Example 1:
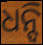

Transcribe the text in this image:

ଧନ୍ଦି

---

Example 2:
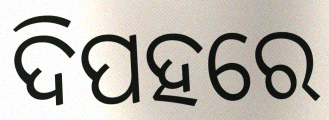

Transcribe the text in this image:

ଦିପହରେ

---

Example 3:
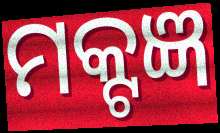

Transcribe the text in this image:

ମକ୍ଟଜ୍ଞ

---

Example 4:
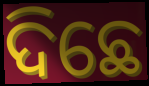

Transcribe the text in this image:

ଦିଛେ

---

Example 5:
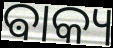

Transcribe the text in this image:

ଵାକ୍ୟ